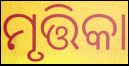
ମୃତ୍ତିକା